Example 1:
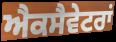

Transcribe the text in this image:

ਐਕਸੈਵੇਟਰਾਂ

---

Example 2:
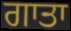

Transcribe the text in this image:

ਗਾਤਾ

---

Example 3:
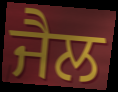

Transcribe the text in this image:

ਜੈਲ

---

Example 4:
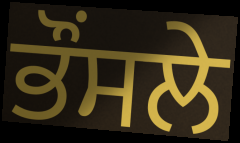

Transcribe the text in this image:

ਭੌਂਸਲੇ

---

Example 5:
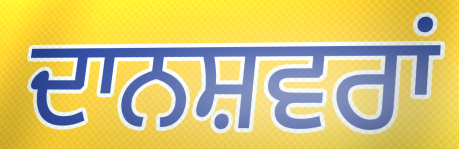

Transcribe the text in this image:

ਦਾਨਸ਼ਵਰਾਂ